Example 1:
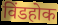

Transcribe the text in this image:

विंडहोक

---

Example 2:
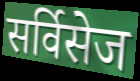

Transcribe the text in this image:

सर्विसेज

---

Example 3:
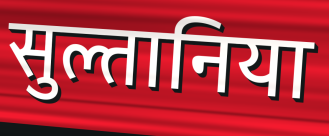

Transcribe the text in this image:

सुल्तानिया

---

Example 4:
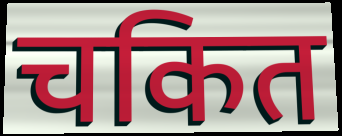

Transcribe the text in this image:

चकित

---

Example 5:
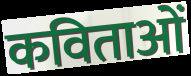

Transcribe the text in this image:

कविताओं